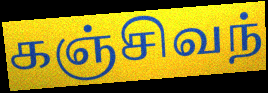
கஞ்சிவந்